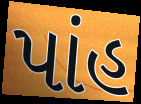
પાંહ